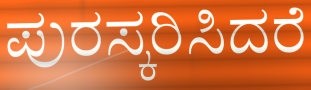
ಪುರಸ್ಕರಿಸಿದರೆ